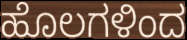
ಹೊಲಗಳಿಂದ